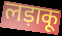
लड़ाकू